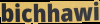
bichhawi